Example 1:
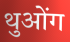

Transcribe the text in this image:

थुओंग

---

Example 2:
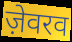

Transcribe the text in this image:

ज़ेवरव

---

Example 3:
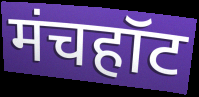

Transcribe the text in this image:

मंचहॉट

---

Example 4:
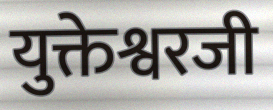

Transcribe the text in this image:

युक्तेश्वरजी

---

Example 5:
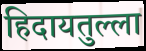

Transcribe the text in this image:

हिदायतुल्ला